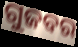
ଗୁଜବର